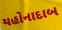
યહોનાદાબ